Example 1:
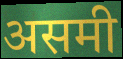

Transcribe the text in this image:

असमी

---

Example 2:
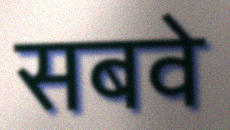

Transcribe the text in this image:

सबवे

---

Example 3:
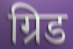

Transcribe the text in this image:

ग्रिड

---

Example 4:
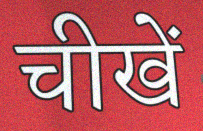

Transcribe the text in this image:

चीखें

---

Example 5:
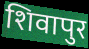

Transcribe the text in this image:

शिवापुर